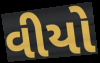
વીયો